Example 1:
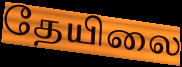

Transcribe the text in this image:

தேயிலை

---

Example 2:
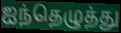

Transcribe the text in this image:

ஐந்தெழுத்து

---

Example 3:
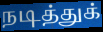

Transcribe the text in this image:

நடித்துக்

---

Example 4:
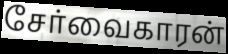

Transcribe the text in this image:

சேர்வைகாரன்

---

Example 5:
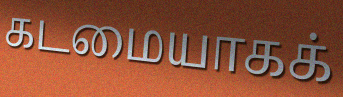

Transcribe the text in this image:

கடமையாகக்